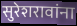
सुरेशरावांना